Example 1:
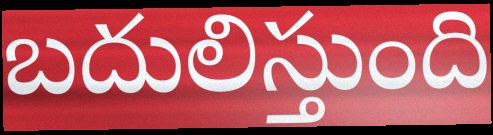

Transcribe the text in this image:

బదులిస్తుంది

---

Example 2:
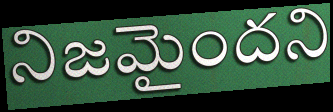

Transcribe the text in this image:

నిజమైందని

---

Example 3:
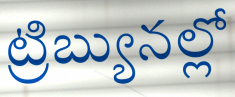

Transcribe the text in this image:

ట్రిబ్యునల్లో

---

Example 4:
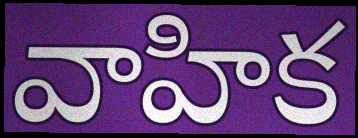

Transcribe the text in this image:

వాహిక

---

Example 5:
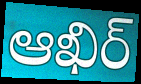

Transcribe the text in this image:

ఆఖిర్